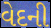
વેદની